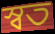
স্বত